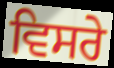
ਵਿਸਰੇ